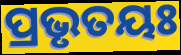
ପ୍ରଭୃତୟଃ